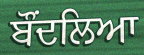
ਬੌਂਦਲਿਆ